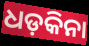
ଧଡ଼କିନା